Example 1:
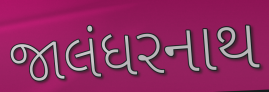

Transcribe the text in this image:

જાલંધરનાથ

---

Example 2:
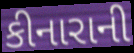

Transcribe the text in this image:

કીનારાની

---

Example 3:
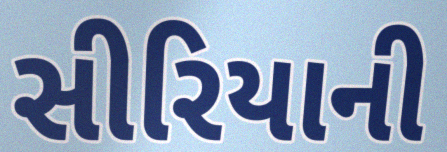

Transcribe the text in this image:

સીરિયાની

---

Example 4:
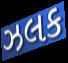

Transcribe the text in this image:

ઝલક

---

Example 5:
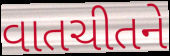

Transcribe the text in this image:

વાતચીતને